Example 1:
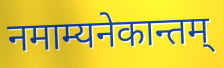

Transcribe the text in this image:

नमाम्यनेकान्तम्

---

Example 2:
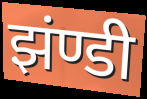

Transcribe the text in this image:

झंण्डी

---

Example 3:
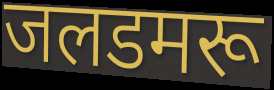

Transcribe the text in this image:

जलडमरू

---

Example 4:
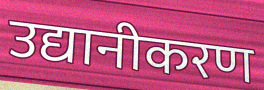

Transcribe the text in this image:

उद्यानीकरण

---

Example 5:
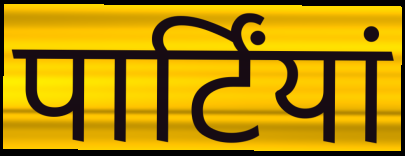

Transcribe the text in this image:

पार्टिंयां